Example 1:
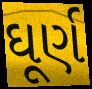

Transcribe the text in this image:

ઘૂર્ણ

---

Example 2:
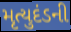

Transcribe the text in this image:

મૃત્યુદંડની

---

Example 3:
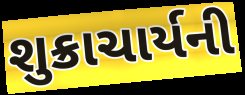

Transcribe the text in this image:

શુક્રાચાર્યની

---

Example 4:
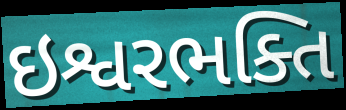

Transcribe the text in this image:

ઇશ્વરભક્તિ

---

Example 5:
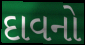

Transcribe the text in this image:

દાવનો